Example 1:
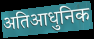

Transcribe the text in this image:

अतिआधुनिक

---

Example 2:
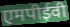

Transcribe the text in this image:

एमपीईवी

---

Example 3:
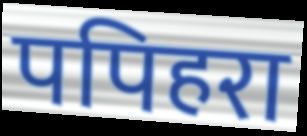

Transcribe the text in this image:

पपिहरा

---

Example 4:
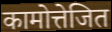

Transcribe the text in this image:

कामोत्तेजित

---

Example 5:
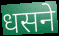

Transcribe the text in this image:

धसने